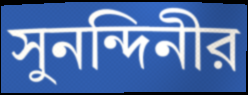
সুনন্দিনীর